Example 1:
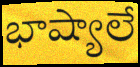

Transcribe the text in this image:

భాష్యాలే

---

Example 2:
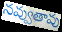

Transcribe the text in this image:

నవ్వుతావు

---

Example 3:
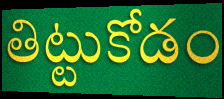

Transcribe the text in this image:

తిట్టుకోడం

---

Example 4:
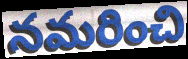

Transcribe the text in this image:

నమరించి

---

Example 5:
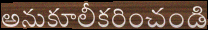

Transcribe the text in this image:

అనుకూలీకరించండి